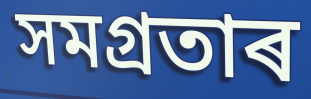
সমগ্ৰতাৰ